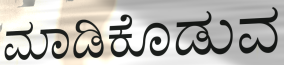
ಮಾಡಿಕೊಡುವ